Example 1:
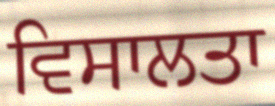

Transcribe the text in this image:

ਵਿਸਾਲਤਾ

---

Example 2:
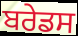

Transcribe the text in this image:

ਬਰੇਡਸ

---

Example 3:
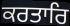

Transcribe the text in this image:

ਕਰਤਾਰਿ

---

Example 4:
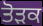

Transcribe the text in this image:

ਤੋੜਕ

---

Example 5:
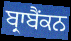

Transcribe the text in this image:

ਬ੍ਰਾਬੈਂਕਨ